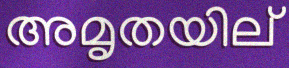
അമൃതയില്